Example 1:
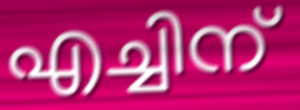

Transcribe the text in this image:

എച്ചിന്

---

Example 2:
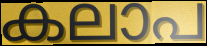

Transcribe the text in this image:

കലാപ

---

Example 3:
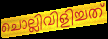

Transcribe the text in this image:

ചൊല്ലിവിളിച്ചത്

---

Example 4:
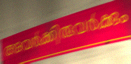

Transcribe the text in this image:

അവർക്കിരുവർക്കും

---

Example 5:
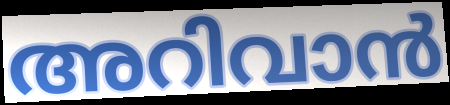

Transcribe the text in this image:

അറിവാൻ